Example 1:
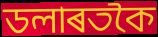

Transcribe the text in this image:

ডলাৰতকৈ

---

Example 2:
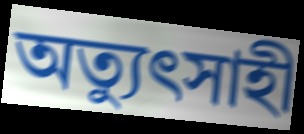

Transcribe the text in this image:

অত্যুৎসাহী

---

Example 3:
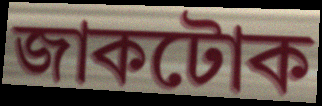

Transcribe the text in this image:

জাকটোক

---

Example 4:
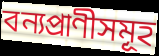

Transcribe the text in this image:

বন্যপ্ৰাণীসমূহ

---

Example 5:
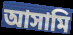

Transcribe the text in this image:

আসামি